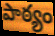
పాఠ్యం